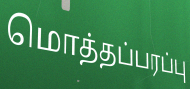
மொத்தப்பரப்பு